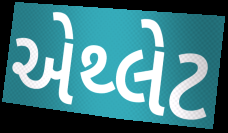
એથ્લેટ